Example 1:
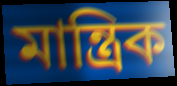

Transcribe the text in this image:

মান্ত্রিক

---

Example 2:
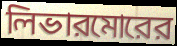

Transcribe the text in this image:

লিভারমোরের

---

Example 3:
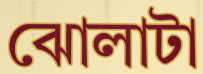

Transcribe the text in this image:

ঝোলাটা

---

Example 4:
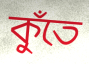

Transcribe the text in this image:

কুঁতে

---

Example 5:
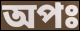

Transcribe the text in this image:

অপঃ